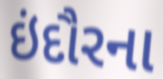
ઇંદૌરના